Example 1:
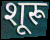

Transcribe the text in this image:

शूरू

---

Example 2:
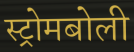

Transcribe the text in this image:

स्ट्रोमबोली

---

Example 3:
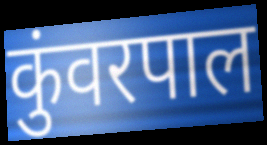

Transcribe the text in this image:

कुंवरपाल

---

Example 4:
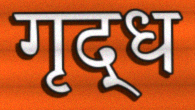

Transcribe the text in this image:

गृद्ध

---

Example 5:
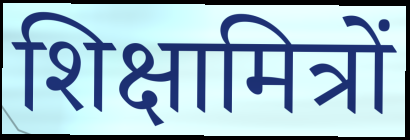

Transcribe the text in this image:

शिक्षामित्रों